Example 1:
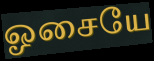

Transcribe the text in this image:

ஓசையே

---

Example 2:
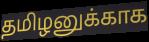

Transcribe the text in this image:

தமிழனுக்காக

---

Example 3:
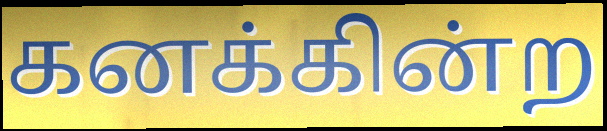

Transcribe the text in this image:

கனக்கின்ற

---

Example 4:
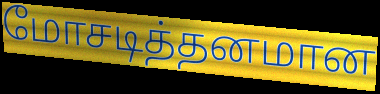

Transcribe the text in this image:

மோசடித்தனமான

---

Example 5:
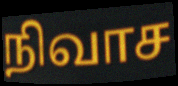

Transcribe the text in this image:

நிவாச